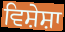
ਵਿਸ਼ੇਸ਼ਾ